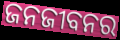
ଜନଜୀବନର